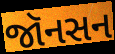
જૉનસન